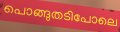
പൊങ്ങുതടിപോലെ